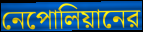
নেপোলিয়ানের